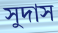
সুদাস